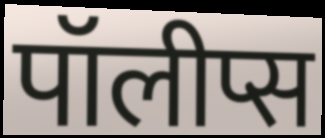
पॉलीप्स